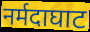
नर्मदाघाट